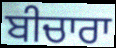
ਬੀਚਾਰਾ